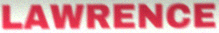
LAWRENCE